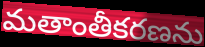
మతాంతీకరణను